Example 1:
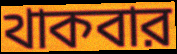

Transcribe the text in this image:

থাকবার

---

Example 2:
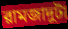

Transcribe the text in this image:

রামজাদুটা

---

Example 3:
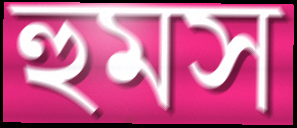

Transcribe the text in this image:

হুমস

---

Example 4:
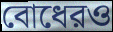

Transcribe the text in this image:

বোধেরও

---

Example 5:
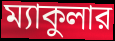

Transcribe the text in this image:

ম্যাকুলার